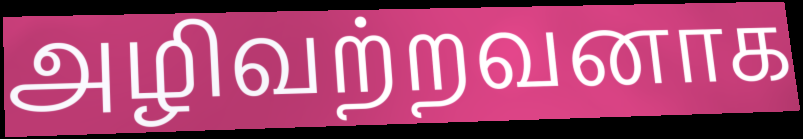
அழிவற்றவனாக